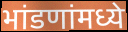
भांडणांमध्ये